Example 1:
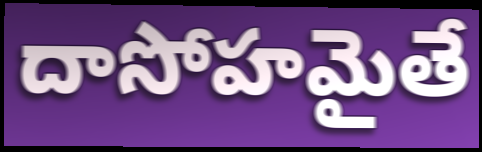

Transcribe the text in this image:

దాసోహమైతే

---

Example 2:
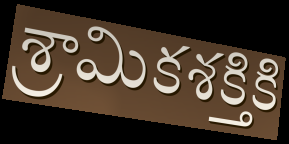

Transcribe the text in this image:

శ్రామికశక్తికి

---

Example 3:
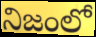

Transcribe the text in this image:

నిజంలో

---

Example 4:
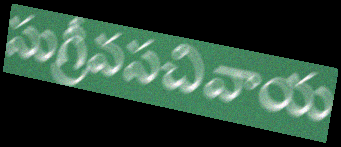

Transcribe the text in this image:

సుగ్రీవసచివాయ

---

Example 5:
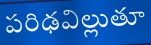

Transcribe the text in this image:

పరిఢవిల్లుతూ